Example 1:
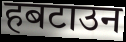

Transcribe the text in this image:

हबटाउन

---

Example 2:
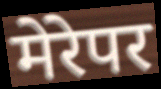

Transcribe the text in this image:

मेरेपर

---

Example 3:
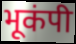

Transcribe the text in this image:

भूकंपी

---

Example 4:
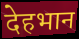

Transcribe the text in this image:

देहभान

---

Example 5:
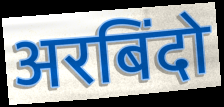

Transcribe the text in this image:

अरबिंदो